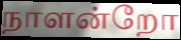
நாளன்றோ